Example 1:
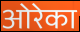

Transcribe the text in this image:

ओरेका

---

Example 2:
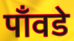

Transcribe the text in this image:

पाँवडे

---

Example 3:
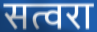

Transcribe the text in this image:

सत्वरा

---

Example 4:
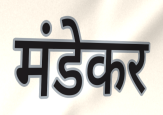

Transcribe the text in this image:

मंडेकर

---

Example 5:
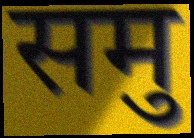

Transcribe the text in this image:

समु